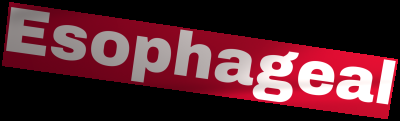
Esophageal